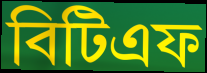
বিটিএফ